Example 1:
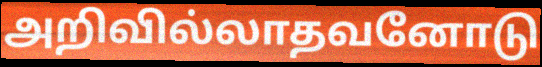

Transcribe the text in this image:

அறிவில்லாதவனோடு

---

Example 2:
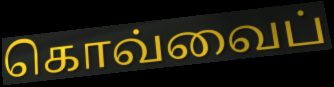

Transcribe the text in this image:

கொவ்வைப்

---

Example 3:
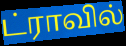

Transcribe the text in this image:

ட்ராவில்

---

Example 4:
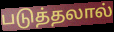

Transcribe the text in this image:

படுத்தலால்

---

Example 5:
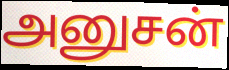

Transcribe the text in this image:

அனுசன்